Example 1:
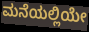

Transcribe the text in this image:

ಮನೆಯಲ್ಲಿಯೇ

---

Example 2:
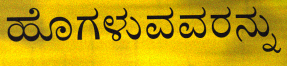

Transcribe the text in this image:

ಹೊಗಳುವವರನ್ನು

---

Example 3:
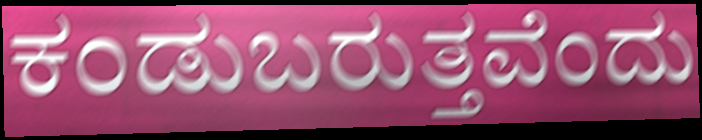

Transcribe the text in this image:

ಕಂಡುಬರುತ್ತವೆಂದು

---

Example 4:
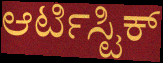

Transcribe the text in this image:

ಆರ್ಟಿಸ್ಟಿಕ್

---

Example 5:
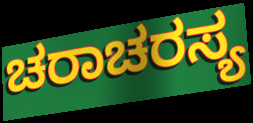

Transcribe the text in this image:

ಚರಾಚರಸ್ಯ